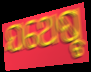
ଯଥେଷ୍ଚ